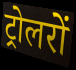
ट्रोलरों